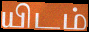
யிடம்